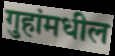
गुहांमधील